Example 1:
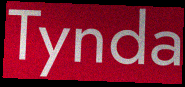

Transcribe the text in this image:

Tynda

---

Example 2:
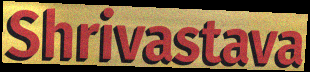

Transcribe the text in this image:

Shrivastava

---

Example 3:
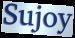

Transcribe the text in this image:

Sujoy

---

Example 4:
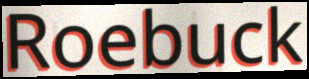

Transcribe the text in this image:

Roebuck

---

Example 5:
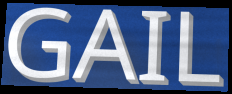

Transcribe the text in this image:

GAIL